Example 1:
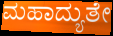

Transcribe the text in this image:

ಮಹಾದ್ಯುತೇ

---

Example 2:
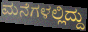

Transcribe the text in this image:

ಮನೆಗಳಲ್ಲಿದ್ದು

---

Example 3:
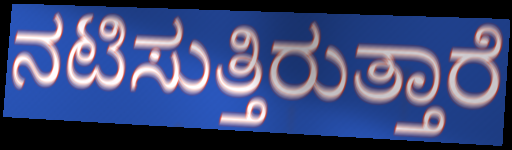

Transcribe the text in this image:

ನಟಿಸುತ್ತಿರುತ್ತಾರೆ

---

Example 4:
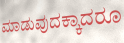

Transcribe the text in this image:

ಮಾಡುವುದಕ್ಕಾದರೂ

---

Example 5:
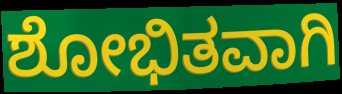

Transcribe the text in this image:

ಶೋಭಿತವಾಗಿ